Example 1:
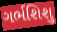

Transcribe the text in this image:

ગર્ભશિશુ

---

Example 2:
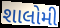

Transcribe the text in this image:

શાલોમી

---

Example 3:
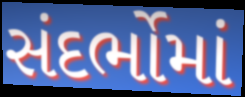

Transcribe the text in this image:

સંદર્ભોમાં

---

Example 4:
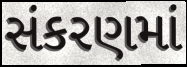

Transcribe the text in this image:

સંકરણમાં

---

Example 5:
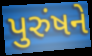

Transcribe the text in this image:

પુરુંષને